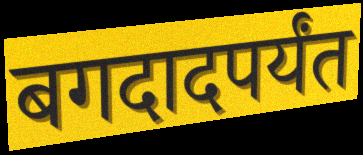
बगदादपर्यंत